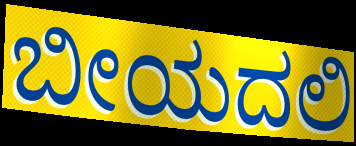
ಬೀಯದಲಿ